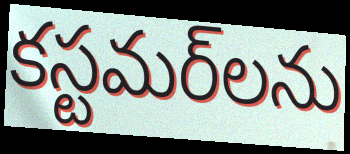
కస్టమర్‌లను